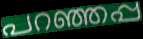
പറഞ്ഞപ്പ